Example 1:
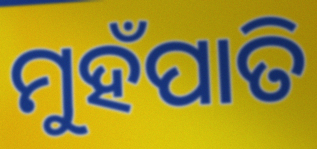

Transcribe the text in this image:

ମୁହଁପାତି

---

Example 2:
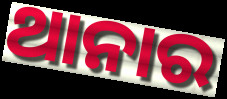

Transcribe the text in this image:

ଥାନାର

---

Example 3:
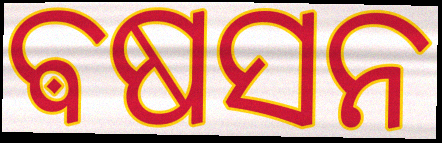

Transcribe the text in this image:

ଵଷସନ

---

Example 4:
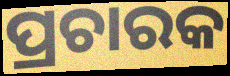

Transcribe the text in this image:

ପ୍ରଚାରକ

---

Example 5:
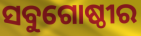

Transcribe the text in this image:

ସବୁଗୋଷ୍ଠୀର